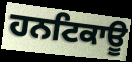
ਹਨਟਿਕਾਊ